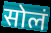
सोलं